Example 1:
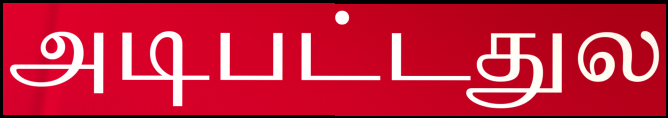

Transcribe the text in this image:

அடிபட்டதுல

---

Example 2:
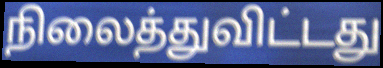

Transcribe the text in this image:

நிலைத்துவிட்டது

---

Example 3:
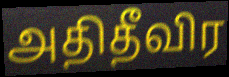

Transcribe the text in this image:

அதிதீவிர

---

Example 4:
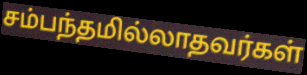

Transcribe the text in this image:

சம்பந்தமில்லாதவர்கள்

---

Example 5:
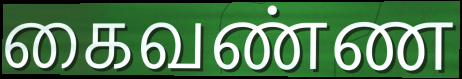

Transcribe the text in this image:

கைவண்ண